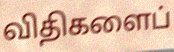
விதிகளைப்